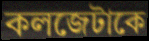
কলজেটাকে